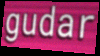
gudar